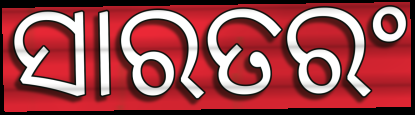
ସାରତରଂ